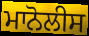
ਮਾਨੋਲੀਸ